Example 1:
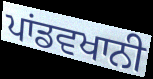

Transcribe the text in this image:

ਪਾਂਡਵਖਾਨੀ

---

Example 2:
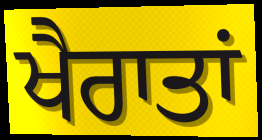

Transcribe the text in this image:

ਖੈਰਾਤਾਂ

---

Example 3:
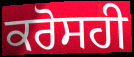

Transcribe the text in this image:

ਕਰੋਸਹੀ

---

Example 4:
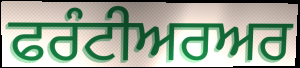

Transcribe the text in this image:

ਫਰੰਟੀਅਰਅਰ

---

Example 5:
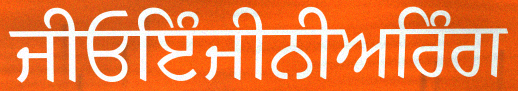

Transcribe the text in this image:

ਜੀਓਇੰਜੀਨੀਅਰਿੰਗ